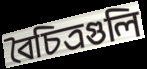
বৈচিত্রগুলি